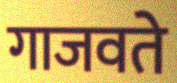
गाजवते